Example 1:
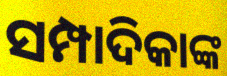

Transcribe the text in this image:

ସମ୍ପାଦିକାଙ୍କ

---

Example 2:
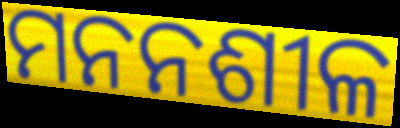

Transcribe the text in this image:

ମନନଶୀଳ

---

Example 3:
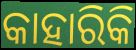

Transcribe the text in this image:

କାହାରିକି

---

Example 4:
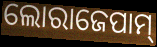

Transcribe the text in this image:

ଲୋରାଜେପାମ୍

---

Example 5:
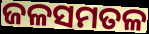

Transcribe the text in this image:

ଜଳସମତଳ